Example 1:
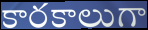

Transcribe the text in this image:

కారకాలుగా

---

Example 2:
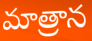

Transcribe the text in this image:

మాత్రాన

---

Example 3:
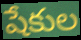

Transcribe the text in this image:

షేకుల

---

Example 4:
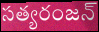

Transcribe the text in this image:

సత్యరంజన్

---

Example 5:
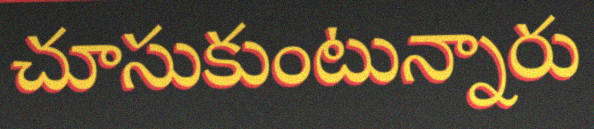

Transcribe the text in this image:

చూసుకుంటున్నారు